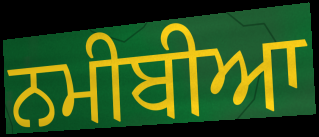
ਨਮੀਬੀਆ